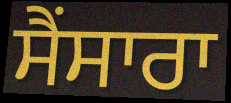
ਸੈਂਸਾਰਾ